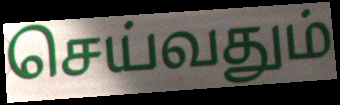
செய்வதும்